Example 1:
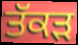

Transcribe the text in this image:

ਤੱਕੜ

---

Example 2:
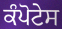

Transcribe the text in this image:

ਕੰਪੋਟੇਸ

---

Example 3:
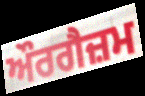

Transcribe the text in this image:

ਔਰਗੈਜ਼ਮ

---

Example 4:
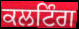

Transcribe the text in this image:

ਕਲਟਿੰਗ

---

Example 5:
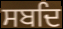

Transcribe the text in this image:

ਸਬਦਿ